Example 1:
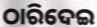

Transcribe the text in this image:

ଠାରିଦେଇ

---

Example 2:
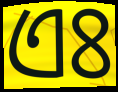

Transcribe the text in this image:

ଏଃ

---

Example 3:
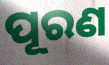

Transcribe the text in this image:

ପୂରଣ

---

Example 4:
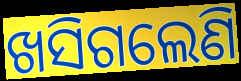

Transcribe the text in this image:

ଖସିଗଲେଣି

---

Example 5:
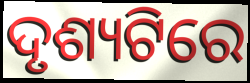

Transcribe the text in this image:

ଦୃଶ୍ୟଟିରେ